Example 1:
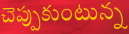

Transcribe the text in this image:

చెప్పుకుంటున్న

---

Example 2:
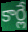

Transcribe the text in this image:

కార్లే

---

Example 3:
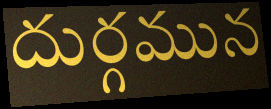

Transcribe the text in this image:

దుర్గమున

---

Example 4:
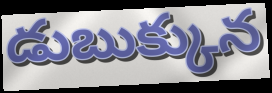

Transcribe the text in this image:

డుబుక్కున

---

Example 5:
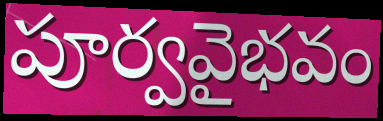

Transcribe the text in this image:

పూర్వవైభవం